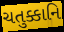
ચતુક્કાનિ